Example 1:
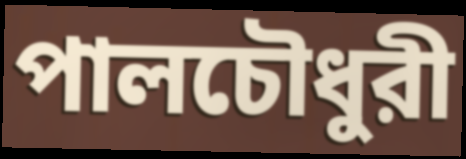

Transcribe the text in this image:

পালচৌধুরী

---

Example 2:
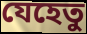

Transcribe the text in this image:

যেহেতু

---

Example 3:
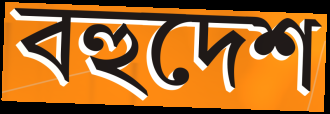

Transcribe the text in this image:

বহুদেশ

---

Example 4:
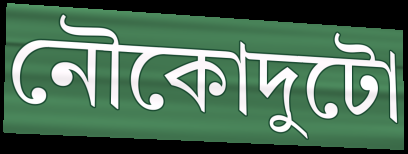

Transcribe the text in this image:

নৌকোদুটো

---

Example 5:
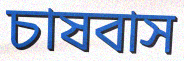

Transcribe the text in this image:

চাষবাস